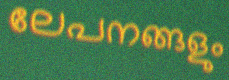
ലേപനങ്ങളും